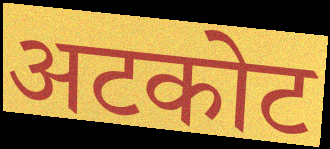
अटकोट